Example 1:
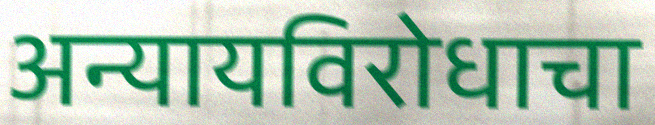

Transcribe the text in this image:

अन्यायविरोधाचा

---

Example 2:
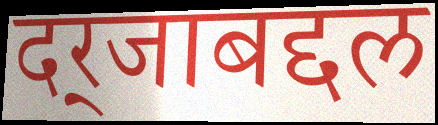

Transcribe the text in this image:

दर्जाबद्दल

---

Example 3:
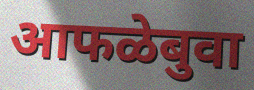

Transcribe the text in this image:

आफळेबुवा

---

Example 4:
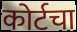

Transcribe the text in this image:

कोर्टचा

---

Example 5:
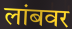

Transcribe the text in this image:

लांबवर